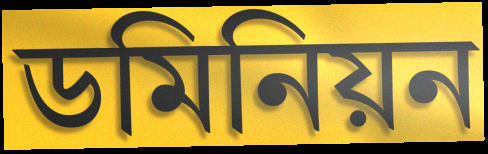
ডমিনিয়ন